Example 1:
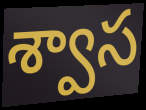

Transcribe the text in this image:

శ్వాస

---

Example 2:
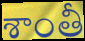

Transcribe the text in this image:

శాంతీ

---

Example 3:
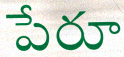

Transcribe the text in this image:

పేరూ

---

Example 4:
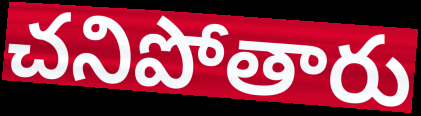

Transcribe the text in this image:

చనిపోతారు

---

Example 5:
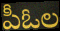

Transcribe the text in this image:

పీఓల